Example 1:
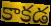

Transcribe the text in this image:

కాకడ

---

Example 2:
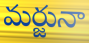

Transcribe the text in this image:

మర్జునా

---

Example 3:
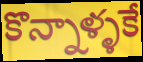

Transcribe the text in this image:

కొన్నాళ్ళకే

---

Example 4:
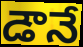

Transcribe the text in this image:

డౌనే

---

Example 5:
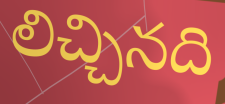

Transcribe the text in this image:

లిచ్చినది